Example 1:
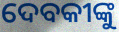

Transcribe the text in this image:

ଦେବକୀଙ୍କୁ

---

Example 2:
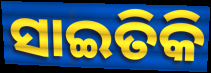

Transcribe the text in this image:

ସାଇତିକି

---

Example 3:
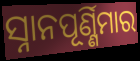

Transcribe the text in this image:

ସ୍ନାନପୂର୍ଣ୍ଣିମାର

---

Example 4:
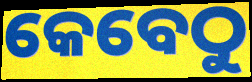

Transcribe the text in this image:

କେବେଠୁ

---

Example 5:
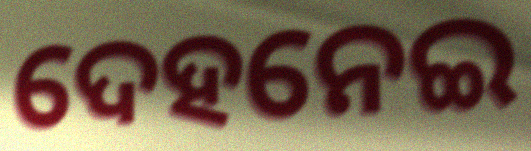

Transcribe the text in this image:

ଦେହନେଇ